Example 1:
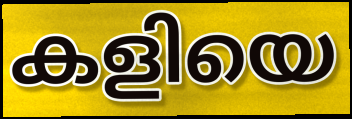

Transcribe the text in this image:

കളിയെ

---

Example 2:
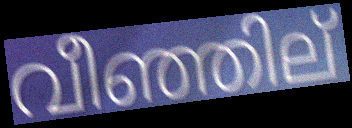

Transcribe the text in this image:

വീഞ്ഞില്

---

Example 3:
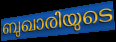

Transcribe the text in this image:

ബുഖാരിയുടെ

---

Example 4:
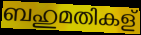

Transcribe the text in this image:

ബഹുമതികള്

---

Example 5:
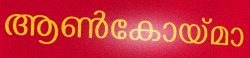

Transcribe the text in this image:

ആൺകോയ്മാ